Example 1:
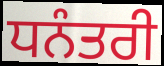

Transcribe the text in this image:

ਧਨੰਤਰੀ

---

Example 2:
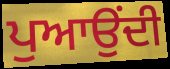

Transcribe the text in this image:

ਪੁਆਉਂਦੀ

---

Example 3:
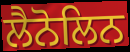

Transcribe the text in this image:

ਲੈਨੋਲਿਨ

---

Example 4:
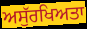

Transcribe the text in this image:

ਅਸੁੱਰਖਿਅਤਾ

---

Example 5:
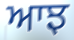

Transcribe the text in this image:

ਆਝ